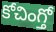
కోచింగ్తో